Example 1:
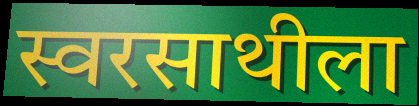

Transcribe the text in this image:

स्वरसाथीला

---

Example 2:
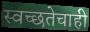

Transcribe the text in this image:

स्वच्छतेचाही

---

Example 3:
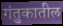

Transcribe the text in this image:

गंतुकातील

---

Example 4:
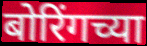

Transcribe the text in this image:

बोरिंगच्या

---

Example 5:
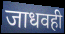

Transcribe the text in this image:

जाधवही